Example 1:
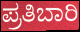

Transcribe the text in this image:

ಪ್ರತಿಬಾರಿ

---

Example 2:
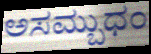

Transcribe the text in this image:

ಅಸಮ್ಬುಧಂ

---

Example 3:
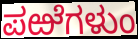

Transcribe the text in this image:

ಪಱೆಗಳುಂ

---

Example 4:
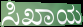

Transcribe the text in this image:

ಸಿಖಾಯ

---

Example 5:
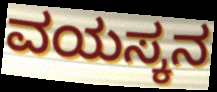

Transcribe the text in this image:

ವಯಸ್ಕನ